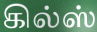
கில்ஸ்